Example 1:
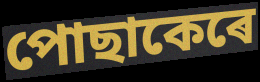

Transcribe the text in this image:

পোছাকেৰে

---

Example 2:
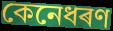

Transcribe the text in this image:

কেনেধৰণ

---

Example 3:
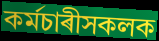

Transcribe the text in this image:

কৰ্মচাৰীসকলক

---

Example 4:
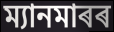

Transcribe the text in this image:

ম্যানমাৰৰ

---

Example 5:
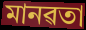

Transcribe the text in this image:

মানৱতা